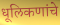
धूलिकणांचे